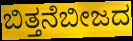
ಬಿತ್ತನೆಬೀಜದ